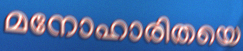
മനോഹാരിതയെ